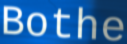
Bothe